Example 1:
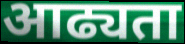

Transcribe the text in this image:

आढ्यता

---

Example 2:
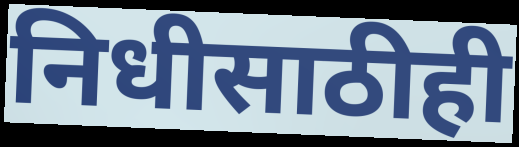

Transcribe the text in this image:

निधीसाठीही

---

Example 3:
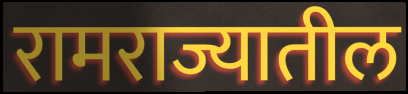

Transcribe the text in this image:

रामराज्यातील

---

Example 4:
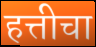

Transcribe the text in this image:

हत्तीचा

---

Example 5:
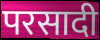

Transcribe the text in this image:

परसादी